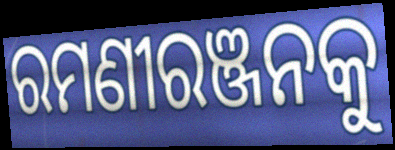
ରମଣୀରଞ୍ଜନକୁ